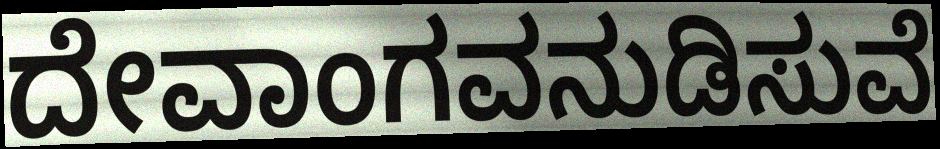
ದೇವಾಂಗವನುಡಿಸುವೆ